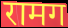
रामग